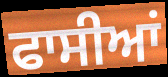
ਫਾਸੀਆਂ